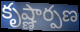
కృష్ణార్పణ